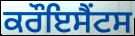
ਕਰੌਇਸੈਂਟਸ